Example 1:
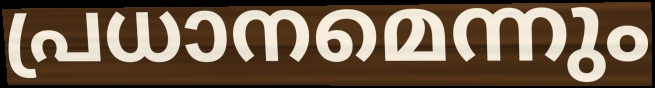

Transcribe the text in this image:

പ്രധാനമെന്നും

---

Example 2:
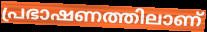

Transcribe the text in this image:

പ്രഭാഷണത്തിലാണ്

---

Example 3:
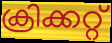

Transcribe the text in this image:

ക്രിക്കറ്റ്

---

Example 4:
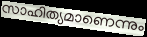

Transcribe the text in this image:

സാഹിത്യമാണെന്നും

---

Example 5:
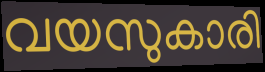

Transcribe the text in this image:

വയസുകാരി